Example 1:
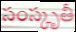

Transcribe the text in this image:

సంస్కృతీ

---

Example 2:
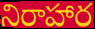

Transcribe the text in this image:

నిరాహార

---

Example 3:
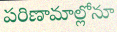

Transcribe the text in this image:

పరిణామాల్లోనూ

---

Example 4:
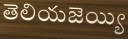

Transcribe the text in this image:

తెలియజెయ్యి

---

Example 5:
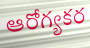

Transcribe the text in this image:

ఆరోగ్యకర